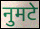
नुमटे